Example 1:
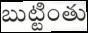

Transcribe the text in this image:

బుట్టింతు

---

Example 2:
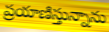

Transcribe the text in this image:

ప్రయాణిస్తున్నాను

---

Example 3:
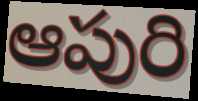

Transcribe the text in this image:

ఆపురి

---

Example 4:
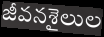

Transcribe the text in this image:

జీవనశైలుల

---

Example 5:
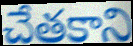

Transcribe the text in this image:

చేతకాని